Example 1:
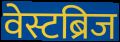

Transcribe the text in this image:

वेस्टब्रिज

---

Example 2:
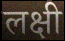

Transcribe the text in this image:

लक्षी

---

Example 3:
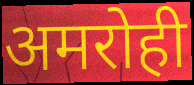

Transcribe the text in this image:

अमरोही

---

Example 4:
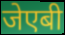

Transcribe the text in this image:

जेएबी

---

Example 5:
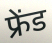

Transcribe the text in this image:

फ्रेंड